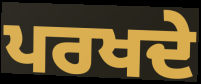
ਪਰਖਦੇ